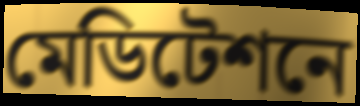
মেডিটেশনে